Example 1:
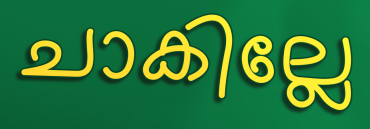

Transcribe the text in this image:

ചാകില്ലേ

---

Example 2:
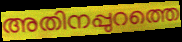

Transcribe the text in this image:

അതിനപ്പുറത്തെ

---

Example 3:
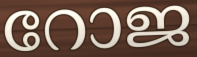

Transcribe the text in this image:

റോജ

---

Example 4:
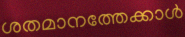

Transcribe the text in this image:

ശതമാനത്തേക്കാൾ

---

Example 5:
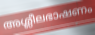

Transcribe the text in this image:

അശ്ലീലഭാഷണം